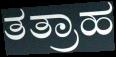
ತತ್ರಾಹ